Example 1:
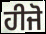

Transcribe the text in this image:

ਹੀਜੋ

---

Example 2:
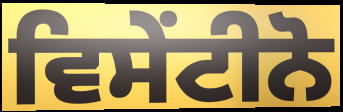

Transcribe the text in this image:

ਵਿਸੇਂਟੀਨੋ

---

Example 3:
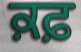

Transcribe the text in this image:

ਕ਼ਫ਼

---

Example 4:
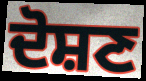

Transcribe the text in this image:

ਦੋਸ਼ਣ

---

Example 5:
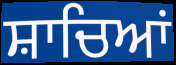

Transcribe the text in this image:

ਸ਼ਾਚਿਆਂ